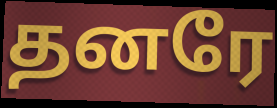
தனரே